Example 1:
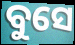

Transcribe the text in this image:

ବୁସେ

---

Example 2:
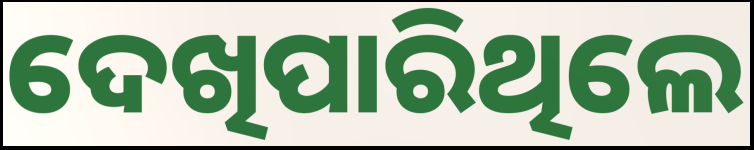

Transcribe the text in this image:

ଦେଖିପାରିଥିଲେ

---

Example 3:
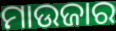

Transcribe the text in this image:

ମାଉଜାର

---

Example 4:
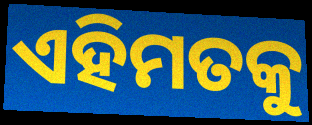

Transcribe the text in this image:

ଏହିମତକୁ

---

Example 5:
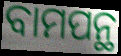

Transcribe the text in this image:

ବାମପନ୍ଥ